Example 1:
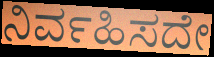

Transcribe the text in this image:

ನಿರ್ವಹಿಸದೇ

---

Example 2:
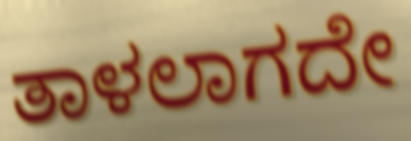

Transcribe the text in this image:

ತಾಳಲಾಗದೇ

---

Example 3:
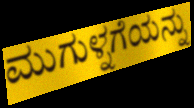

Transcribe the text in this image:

ಮುಗುಳ್ನಗೆಯನ್ನು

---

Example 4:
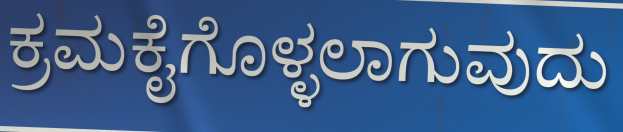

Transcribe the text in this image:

ಕ್ರಮಕೈಗೊಳ್ಳಲಾಗುವುದು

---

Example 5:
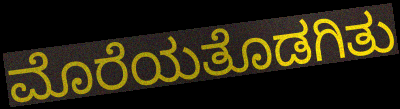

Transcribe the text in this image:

ಮೊರೆಯತೊಡಗಿತು